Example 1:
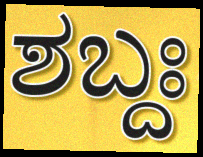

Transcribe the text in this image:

ಶಬ್ದಃ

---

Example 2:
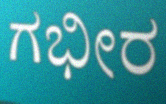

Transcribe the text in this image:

ಗಭೀರ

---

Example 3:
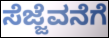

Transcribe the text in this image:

ಸೆಜ್ಜೆವನೆಗೆ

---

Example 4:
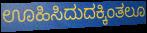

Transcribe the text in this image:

ಊಹಿಸಿದುದಕ್ಕಿಂತಲೂ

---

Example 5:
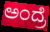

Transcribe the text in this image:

ಅಂದ್ರೆ